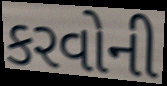
કરવોની